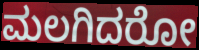
ಮಲಗಿದರೋ